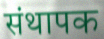
संथापक